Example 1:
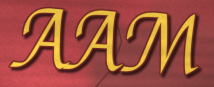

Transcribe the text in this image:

AAM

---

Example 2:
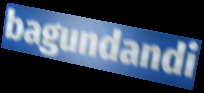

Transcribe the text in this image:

bagundandi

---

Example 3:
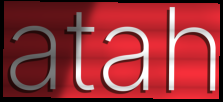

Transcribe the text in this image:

atah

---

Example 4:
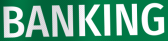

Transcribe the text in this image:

BANKING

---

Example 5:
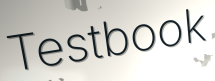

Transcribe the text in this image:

Testbook